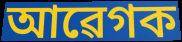
আৱেগক